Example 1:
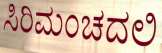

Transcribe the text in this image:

ಸಿರಿಮಂಚದಲಿ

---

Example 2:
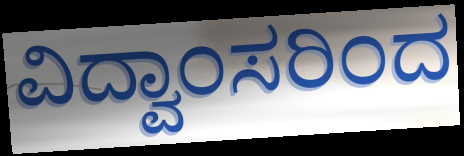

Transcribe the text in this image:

ವಿದ್ವಾಂಸರಿಂದ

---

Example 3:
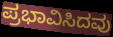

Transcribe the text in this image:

ಪ್ರಭಾವಿಸಿದವು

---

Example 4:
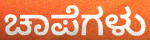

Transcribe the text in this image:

ಚಾಪೆಗಳು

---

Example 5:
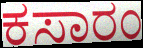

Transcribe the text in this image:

ಕಸಾರಂ